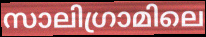
സാലിഗ്രാമിലെ